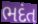
ભદંત